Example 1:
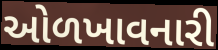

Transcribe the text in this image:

ઓળખાવનારી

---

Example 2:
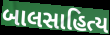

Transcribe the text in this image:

બાલસાહિત્ય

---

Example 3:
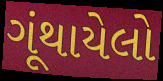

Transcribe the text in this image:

ગૂંથાયેલો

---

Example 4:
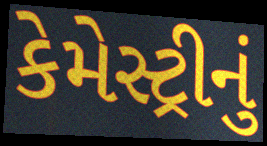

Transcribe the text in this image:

કેમેસ્ટ્રીનું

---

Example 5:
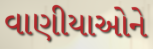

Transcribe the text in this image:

વાણીયાઓને